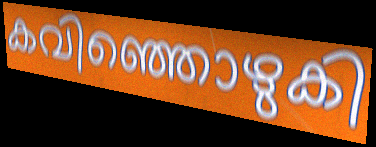
കവിഞ്ഞൊഴുകി